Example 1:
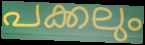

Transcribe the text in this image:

പക്കലും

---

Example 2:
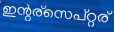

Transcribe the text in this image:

ഇന്റര്സെപ്റ്റര്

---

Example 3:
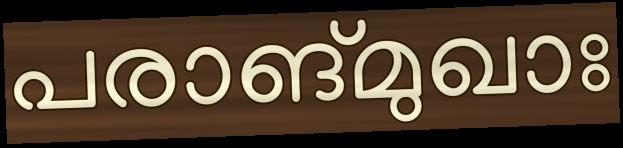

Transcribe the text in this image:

പരാങ്മുഖാഃ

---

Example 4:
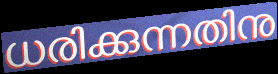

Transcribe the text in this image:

ധരിക്കുന്നതിനു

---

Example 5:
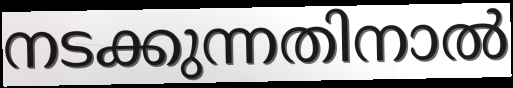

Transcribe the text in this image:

നടക്കുന്നതിനാൽ